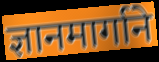
ज्ञानमार्गाने